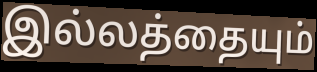
இல்லத்தையும்